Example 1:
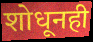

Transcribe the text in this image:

शोधूनही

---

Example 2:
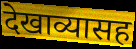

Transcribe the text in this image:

देखाव्यासह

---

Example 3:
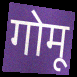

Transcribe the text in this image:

गोमू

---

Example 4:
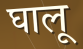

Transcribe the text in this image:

घालू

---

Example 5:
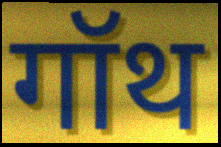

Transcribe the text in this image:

गॉथ